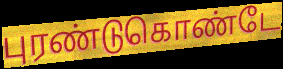
புரண்டுகொண்டே